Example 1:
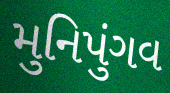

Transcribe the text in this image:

મુનિપુંગવ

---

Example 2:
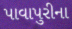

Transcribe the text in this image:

પાવાપુરીના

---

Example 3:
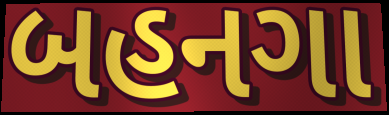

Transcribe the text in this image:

બહનગા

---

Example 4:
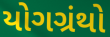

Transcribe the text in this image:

યોગગ્રંથો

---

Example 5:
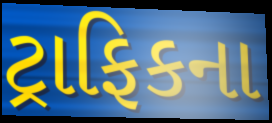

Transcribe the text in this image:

ટ્રાફિકના